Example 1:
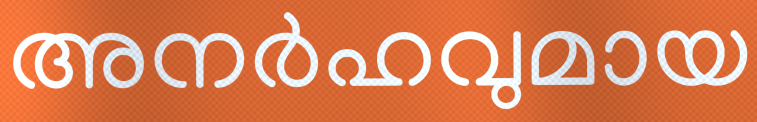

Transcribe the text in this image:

അനർഹവുമായ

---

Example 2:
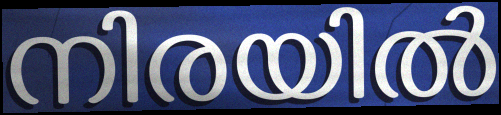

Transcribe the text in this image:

നിരയിൽ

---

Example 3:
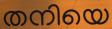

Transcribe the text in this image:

തനിയെ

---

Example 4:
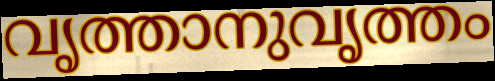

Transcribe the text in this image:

വൃത്താനുവൃത്തം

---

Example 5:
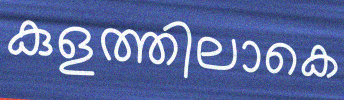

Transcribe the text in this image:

കുളത്തിലാകെ